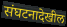
संघटनादेखील